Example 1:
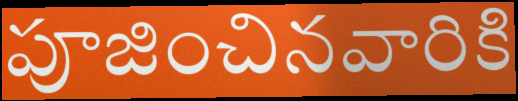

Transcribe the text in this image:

పూజించినవారికి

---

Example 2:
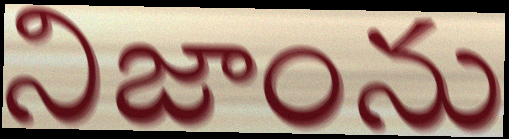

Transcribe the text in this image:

నిజాంను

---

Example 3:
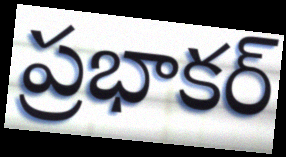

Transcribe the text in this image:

ప్రభాకర్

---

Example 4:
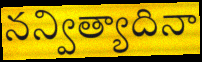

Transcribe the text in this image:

నన్విత్యాదినా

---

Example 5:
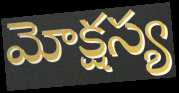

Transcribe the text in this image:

మోక్షస్య